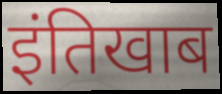
इंतिखाब